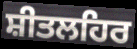
ਸ਼ੀਤਲਹਿਰ